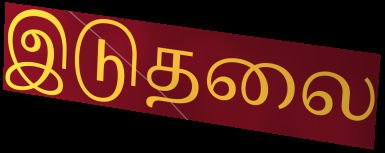
இடுதலை